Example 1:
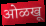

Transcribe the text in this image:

ओळखू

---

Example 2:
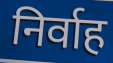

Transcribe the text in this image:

निर्वाह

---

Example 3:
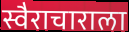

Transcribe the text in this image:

स्वैराचाराला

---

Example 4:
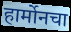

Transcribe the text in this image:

हार्मोनचा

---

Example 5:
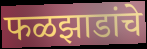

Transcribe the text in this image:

फळझाडांचे